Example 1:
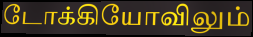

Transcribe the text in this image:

டோக்கியோவிலும்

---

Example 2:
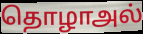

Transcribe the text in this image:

தொழாஅல்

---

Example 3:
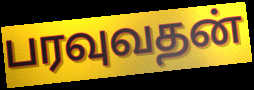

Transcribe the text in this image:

பரவுவதன்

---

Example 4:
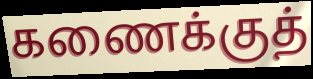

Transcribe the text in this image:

கணைக்குத்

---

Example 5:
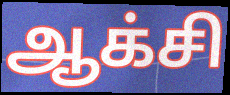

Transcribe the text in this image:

ஆக்சி